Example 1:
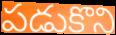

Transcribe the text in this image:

పడుకొని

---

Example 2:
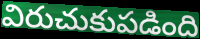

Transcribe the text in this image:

విరుచుకుపడింది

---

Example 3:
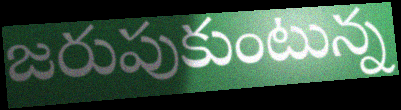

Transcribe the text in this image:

జరుపుకుంటున్న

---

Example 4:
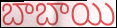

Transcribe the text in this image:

బాబాయి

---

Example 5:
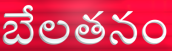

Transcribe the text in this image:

బేలతనం